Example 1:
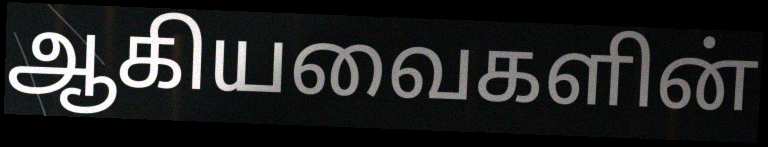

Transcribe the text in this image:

ஆகியவைகளின்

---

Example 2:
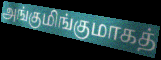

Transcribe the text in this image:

அங்குமிங்குமாகத்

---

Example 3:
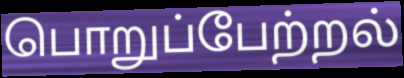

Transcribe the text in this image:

பொறுப்பேற்றல்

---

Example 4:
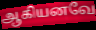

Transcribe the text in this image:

ஆகியனவே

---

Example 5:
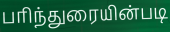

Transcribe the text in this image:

பரிந்துரையின்படி